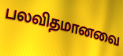
பலவிதமானவை